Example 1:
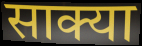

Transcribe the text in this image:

साक्या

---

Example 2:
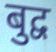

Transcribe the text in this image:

बुद्व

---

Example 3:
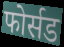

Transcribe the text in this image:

फोर्सड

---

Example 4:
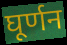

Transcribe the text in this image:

घूर्णन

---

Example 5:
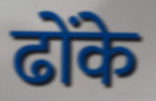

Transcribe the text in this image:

ढोंके